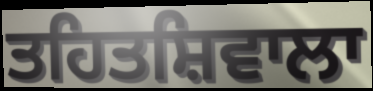
ਤਹਿਤਸ਼ਿਵਾਲਾ